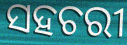
ସହଚରୀ